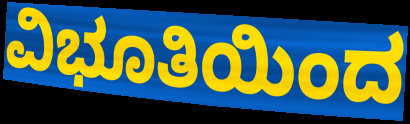
ವಿಭೂತಿಯಿಂದ